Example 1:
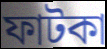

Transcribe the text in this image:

ফাটকা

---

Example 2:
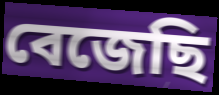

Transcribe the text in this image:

বেজেছি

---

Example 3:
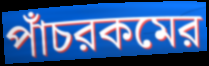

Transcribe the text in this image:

পাঁচরকমের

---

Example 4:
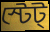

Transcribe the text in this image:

স্টেট্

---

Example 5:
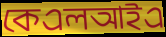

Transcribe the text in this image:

কেএলআইএ